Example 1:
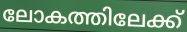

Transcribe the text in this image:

ലോകത്തിലേക്ക്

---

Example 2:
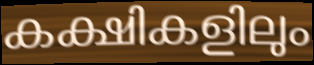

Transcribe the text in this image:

കക്ഷികളിലും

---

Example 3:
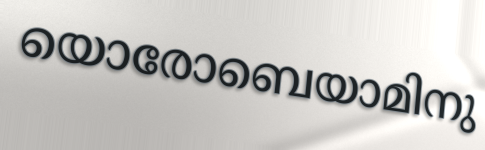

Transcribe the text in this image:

യൊരോബെയാമിനു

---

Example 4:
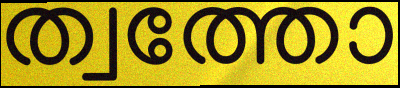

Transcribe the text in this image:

ത്വത്തോ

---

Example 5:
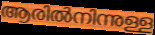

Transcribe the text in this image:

ആരിൽനിന്നുള്ള